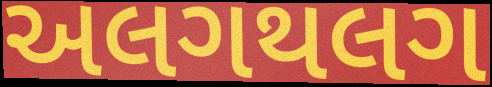
અલગથલગ